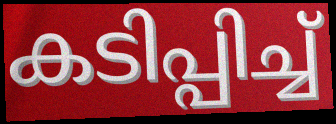
കടിപ്പിച്ച്